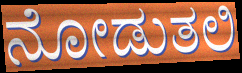
ನೋಡುತಲಿ